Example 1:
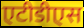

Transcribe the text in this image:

एटीडीएस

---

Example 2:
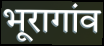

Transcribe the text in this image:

भूरागांव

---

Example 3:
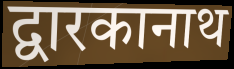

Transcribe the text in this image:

द्वारकानाथ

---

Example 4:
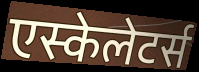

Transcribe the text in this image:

एस्केलेटर्स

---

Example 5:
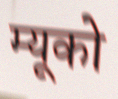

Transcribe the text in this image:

म्यूको